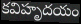
కవిహృదయం